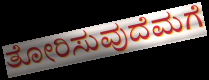
ತೋರಿಸುವುದೆಮಗೆ